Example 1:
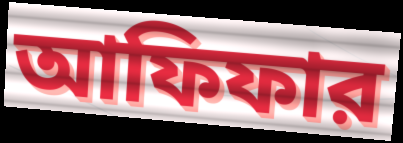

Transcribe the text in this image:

আফিফার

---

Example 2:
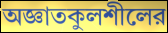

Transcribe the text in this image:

অজ্ঞাতকুলশীলের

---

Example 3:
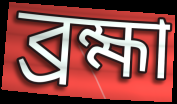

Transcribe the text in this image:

ব্রহ্মা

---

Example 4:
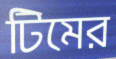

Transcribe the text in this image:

টিমের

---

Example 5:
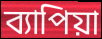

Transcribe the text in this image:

ব্যাপিয়া